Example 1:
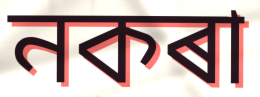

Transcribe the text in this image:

নকৰা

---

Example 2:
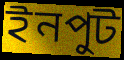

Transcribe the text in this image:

ইনপুট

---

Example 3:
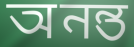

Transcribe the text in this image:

অনন্ত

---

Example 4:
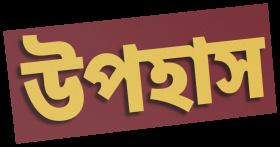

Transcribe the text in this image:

উপহাস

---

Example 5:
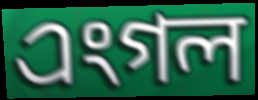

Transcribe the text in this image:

এংগল